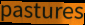
pastures